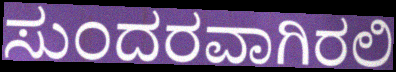
ಸುಂದರವಾಗಿರಲಿ